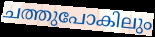
ചത്തുപോകിലും